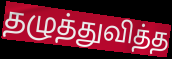
தழுத்துவித்த